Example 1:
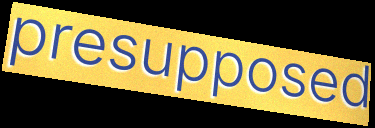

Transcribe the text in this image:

presupposed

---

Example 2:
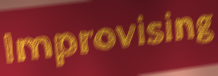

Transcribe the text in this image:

Improvising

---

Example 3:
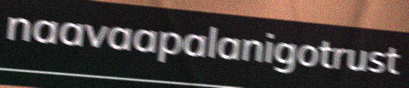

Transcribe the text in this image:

naavaapalanigotrust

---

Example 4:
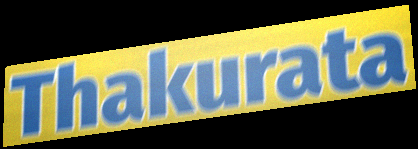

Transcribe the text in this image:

Thakurata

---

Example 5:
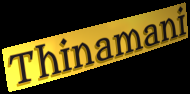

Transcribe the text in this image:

Thinamani